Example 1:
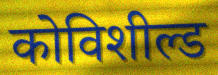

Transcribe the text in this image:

कोविशील्ड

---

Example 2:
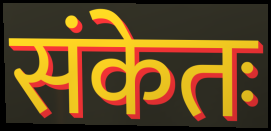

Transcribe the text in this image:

संकेतः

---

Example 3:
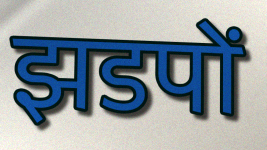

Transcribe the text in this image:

झडपों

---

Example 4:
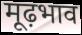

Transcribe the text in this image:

मूढ़भाव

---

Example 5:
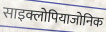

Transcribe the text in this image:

साइक्लोपियाजोनिक